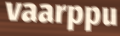
vaarppu